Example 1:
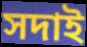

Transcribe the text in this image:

সদাই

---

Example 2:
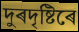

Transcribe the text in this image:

দুৰদৃষ্টিৰে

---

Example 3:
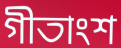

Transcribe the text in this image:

গীতাংশ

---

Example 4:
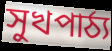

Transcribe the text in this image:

সুখপাঠ্য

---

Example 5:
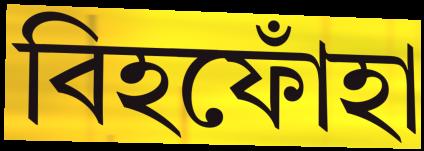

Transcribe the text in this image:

বিহফোঁহা